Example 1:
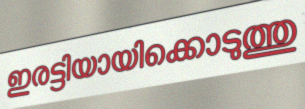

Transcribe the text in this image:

ഇരട്ടിയായിക്കൊടുത്തു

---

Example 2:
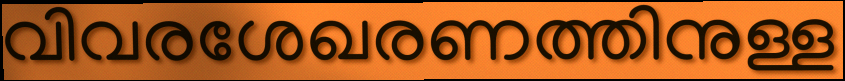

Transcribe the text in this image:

വിവരശേഖരണത്തിനുള്ള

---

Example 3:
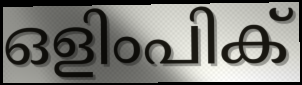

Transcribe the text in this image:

ഒളിംപിക്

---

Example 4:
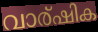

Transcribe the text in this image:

വാര്ഷിക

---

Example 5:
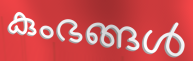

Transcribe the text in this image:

കുംഭങ്ങൾ